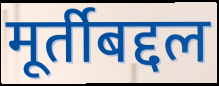
मूर्तीबद्दल